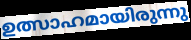
ഉത്സാഹമായിരുന്നു